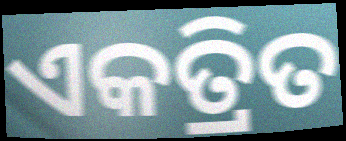
ଏକତ୍ରିତ